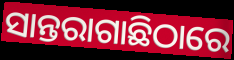
ସାନ୍ତରାଗାଛିଠାରେ